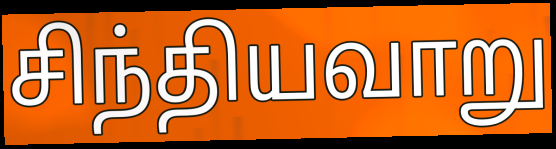
சிந்தியவாறு